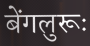
बेंगलुरूः